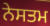
ਨੇਸਤਮ